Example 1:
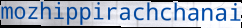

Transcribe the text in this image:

mozhippirachchanai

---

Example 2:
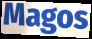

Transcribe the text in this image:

Magos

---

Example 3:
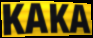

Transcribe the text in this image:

KAKA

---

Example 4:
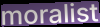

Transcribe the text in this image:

moralist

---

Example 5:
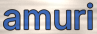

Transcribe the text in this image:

amuri